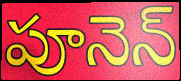
పూనెన్